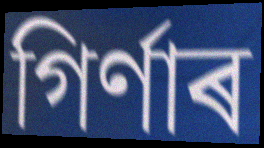
গিৰ্ণাৰ